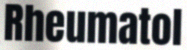
Rheumatol